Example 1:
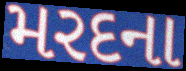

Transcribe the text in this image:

મરદના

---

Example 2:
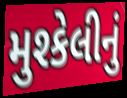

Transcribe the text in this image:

મુશ્કેલીનું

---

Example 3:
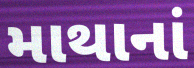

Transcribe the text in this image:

માથાનાં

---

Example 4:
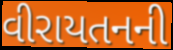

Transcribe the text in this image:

વીરાયતનની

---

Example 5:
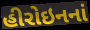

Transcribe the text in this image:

હીરોઇનનાં